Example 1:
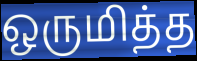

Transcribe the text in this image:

ஒருமித்த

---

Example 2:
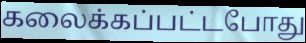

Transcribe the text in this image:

கலைக்கப்பட்டபோது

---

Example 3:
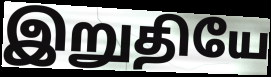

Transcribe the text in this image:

இறுதியே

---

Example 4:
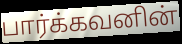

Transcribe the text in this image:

பார்க்கவனின்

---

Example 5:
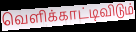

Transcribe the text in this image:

வெளிக்காட்டிவிடும்